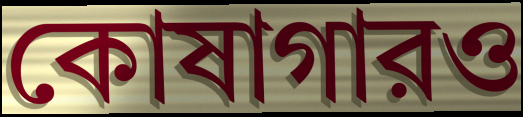
কোষাগারও